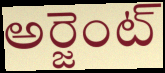
అర్జెంట్